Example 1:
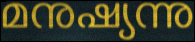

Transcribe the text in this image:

മനുഷ്യന്നു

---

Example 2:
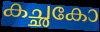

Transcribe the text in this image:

കച്ഛകോ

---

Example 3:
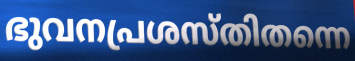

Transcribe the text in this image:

ഭുവനപ്രശസ്തിതന്നെ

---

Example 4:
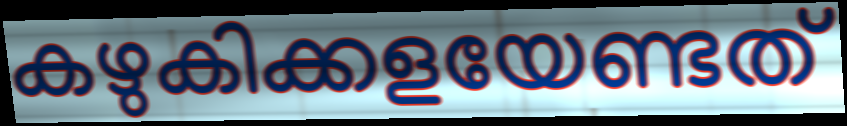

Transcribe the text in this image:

കഴുകിക്കളയേണ്ടത്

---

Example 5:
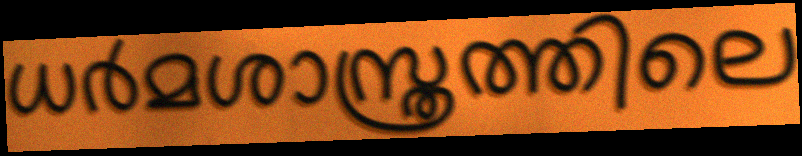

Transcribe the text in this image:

ധർമശാസ്ത്രത്തിലെ